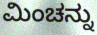
ಮಿಂಚನ್ನು